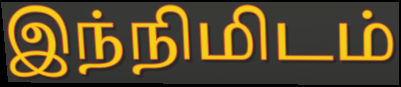
இந்நிமிடம்